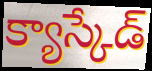
క్యాస్కేడ్